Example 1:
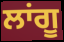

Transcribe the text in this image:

ਲਾਂਗੂ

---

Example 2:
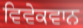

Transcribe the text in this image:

ਵਿਵੇਕਵਾਨ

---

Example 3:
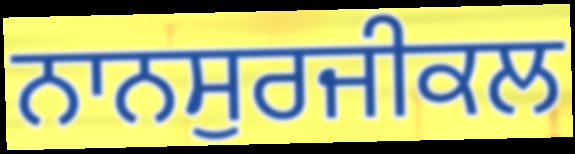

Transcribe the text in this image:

ਨਾਨਸੁਰਜੀਕਲ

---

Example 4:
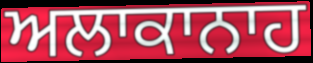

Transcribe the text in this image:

ਅਲਾਕਾਨਾਹ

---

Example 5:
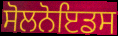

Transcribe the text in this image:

ਸੋਲਨੋਇਡਸ